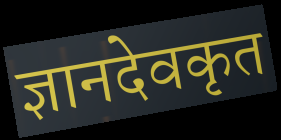
ज्ञानदेवकृत